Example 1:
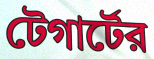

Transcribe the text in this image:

টেগার্টের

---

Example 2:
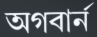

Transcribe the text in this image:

অগবার্ন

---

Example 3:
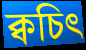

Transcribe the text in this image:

ক্বচিৎ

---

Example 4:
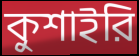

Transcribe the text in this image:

কুশাইরি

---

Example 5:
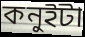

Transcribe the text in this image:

কনুইটা